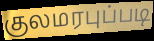
குலமரபுப்படி